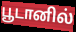
பூடானில்